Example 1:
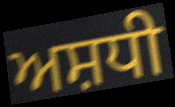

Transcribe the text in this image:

ਅਸ਼ਧੀ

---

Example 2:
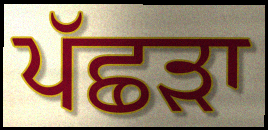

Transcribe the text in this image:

ਪੱਛੜਾ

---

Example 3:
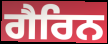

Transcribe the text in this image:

ਗੈਰਿਨ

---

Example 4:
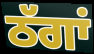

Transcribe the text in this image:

ਠੱਗਾਂ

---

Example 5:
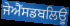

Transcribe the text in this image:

ਜੇਐੱਸਡਬਲਿਊ